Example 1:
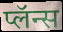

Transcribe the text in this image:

प्लॅन्स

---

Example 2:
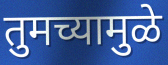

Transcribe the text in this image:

तुमच्यामुळे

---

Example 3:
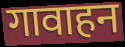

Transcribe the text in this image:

गावाहन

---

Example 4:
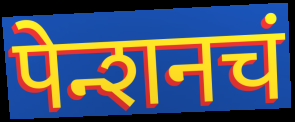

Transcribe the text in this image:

पेन्शनचं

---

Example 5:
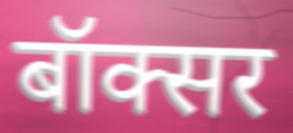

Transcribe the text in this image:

बॉक्सर